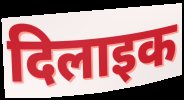
दिलाइक